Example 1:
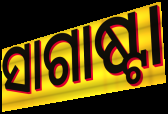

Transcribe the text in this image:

ସାଗାଷ୍ଟା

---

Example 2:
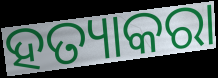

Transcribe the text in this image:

ହତ୍ୟାକରା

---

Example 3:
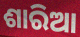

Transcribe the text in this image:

ଶାରିଆ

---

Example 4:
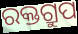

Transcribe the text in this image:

ରକ୍ତଗ୍ରୁପ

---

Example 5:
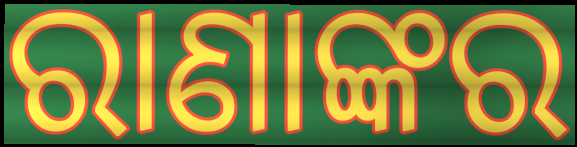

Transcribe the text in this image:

ରାଣାଙ୍କର